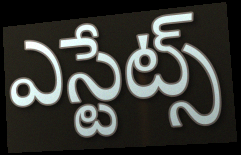
ఎస్టేట్స్